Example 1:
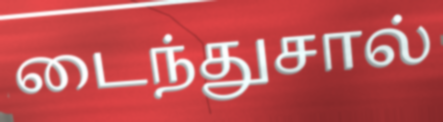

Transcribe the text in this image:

டைந்துசால்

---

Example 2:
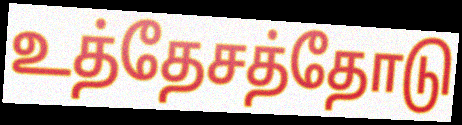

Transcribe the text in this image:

உத்தேசத்தோடு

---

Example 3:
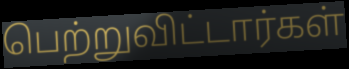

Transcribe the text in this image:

பெற்றுவிட்டார்கள்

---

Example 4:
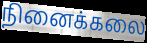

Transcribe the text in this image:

நினைக்கலை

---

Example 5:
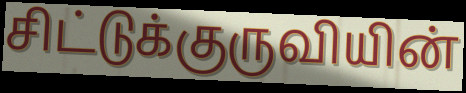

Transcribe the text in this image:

சிட்டுக்குருவியின்